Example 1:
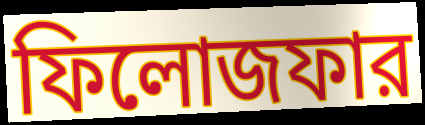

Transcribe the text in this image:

ফিলোজফার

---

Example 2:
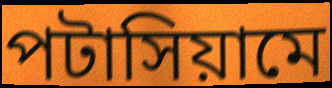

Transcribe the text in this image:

পটাসিয়ামে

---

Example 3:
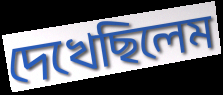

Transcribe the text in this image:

দেখেছিলেম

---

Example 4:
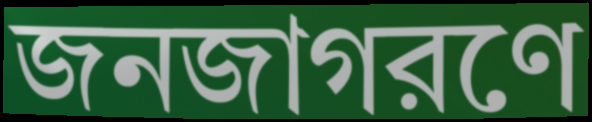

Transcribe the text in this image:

জনজাগরণে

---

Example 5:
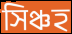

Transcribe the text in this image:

সিঞ্চহ